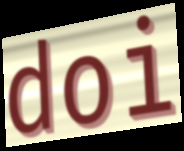
doi